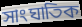
সাংঘাতিক